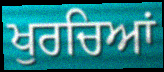
ਖੁਰਚਿਆਂ